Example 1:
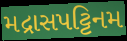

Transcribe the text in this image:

મદ્રાસપટ્ટિનમ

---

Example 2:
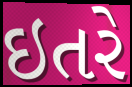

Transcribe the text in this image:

ઇતરે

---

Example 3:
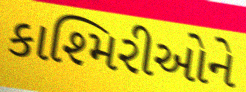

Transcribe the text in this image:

કાશ્મિરીઓને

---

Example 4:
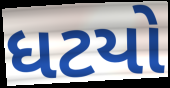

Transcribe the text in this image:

ધટયો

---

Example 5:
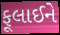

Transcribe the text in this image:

ફૂલાઈને